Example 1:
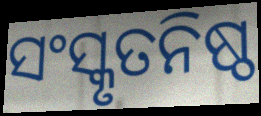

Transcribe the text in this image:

ସଂସ୍କୃତନିଷ୍ଠ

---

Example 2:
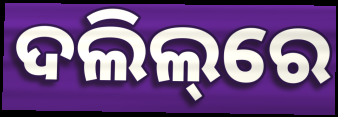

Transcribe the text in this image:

ଦଲିଲ୍‌ରେ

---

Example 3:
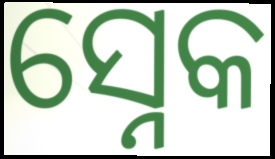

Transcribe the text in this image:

ସ୍ନେକ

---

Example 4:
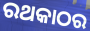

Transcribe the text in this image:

ରଥକାଠର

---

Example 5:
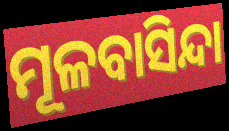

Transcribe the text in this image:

ମୂଳବାସିନ୍ଦା